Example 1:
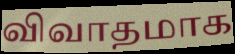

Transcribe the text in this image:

விவாதமாக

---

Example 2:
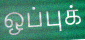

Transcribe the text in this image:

ஒப்புக்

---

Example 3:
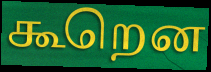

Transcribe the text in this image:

கூறென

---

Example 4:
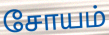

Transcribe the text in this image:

சோயம்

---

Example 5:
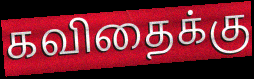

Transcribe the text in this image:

கவிதைக்கு